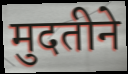
मुदतीने